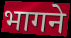
भागने